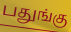
பதுங்கு